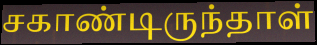
சகாண்டிருந்தாள்